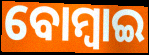
ବୋମ୍ୱାଇ